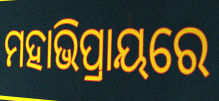
ମହାଭିପ୍ରାୟରେ